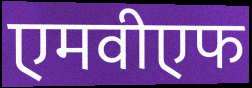
एमवीएफ